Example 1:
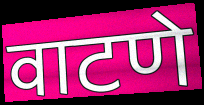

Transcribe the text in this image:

वाटणे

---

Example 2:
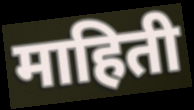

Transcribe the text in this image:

माहिती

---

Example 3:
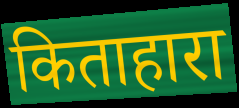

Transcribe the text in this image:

किताहारा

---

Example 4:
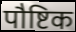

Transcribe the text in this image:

पौष्टिक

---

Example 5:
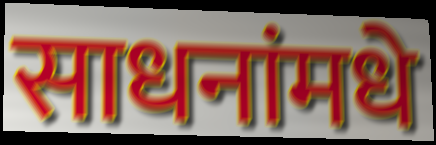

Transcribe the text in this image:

साधनांमधे